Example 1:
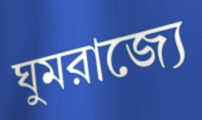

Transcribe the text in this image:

ঘুমরাজ্যে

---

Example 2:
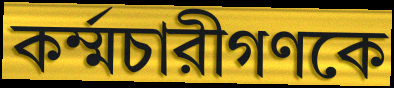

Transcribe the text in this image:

কর্ম্মচারীগণকে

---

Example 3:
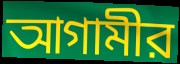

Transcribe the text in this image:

আগামীর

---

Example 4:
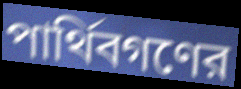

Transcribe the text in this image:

পার্থিবগণের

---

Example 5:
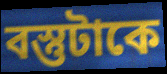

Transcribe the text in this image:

বস্তুটাকে